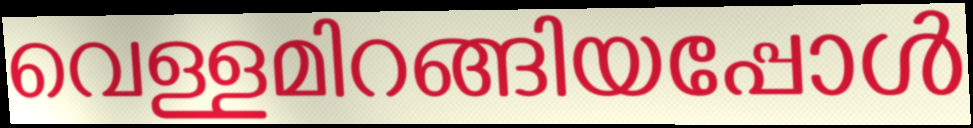
വെള്ളമിറങ്ങിയപ്പോൾ